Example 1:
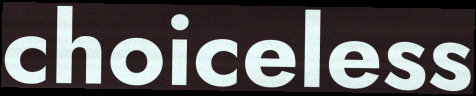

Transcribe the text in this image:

choiceless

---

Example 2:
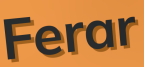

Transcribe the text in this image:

Ferar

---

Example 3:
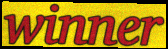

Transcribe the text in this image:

winner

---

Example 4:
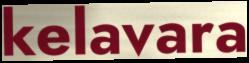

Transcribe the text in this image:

kelavara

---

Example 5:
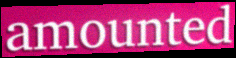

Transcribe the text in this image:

amounted